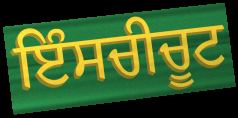
ਇੰਸਚੀਚੂਟ